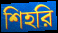
শিহরি